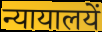
न्यायालयें